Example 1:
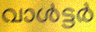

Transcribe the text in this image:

വാൾട്ടർ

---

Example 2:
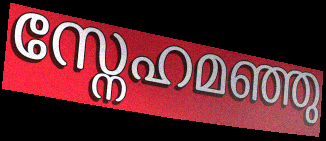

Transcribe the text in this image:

സ്നേഹമഞ്ഞു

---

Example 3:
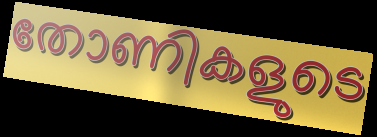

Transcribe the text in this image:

തോണികളുടെ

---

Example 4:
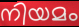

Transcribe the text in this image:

നിയമം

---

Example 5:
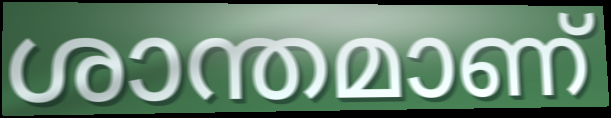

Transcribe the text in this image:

ശാന്തമാണ്